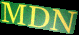
MDN